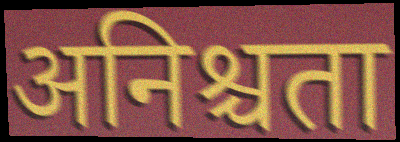
अनिश्चता